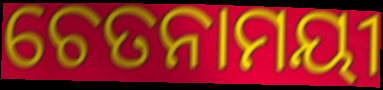
ଚେତନାମୟୀ